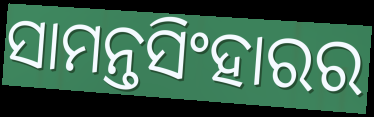
ସାମନ୍ତସିଂହାରର